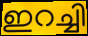
ഇറച്ചി